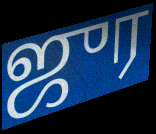
ஜுர